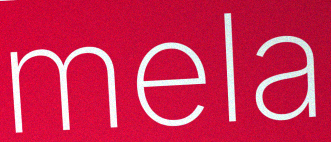
mela